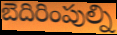
బెదిరింపుల్ని